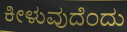
ಕೀಳುವುದೆಂದು